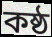
কষ্ঠ